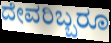
ದೇವರಿಬ್ಬರೂ